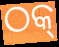
ଠକ୍